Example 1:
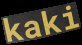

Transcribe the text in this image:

kaki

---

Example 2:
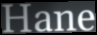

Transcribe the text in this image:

Hane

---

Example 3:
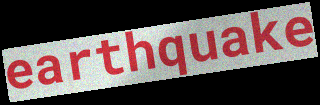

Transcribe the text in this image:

earthquake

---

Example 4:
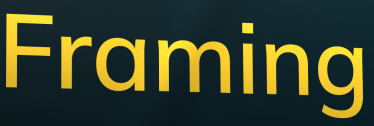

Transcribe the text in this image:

Framing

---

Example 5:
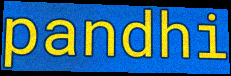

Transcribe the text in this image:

pandhi